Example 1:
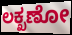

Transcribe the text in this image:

ಲಕ್ಖಣೋ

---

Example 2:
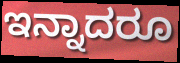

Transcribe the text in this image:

ಇನ್ನಾದರೂ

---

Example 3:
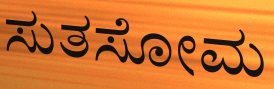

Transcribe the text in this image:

ಸುತಸೋಮ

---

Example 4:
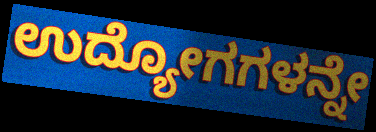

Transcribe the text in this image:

ಉದ್ಯೋಗಗಳನ್ನೇ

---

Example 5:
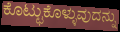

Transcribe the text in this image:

ಕೊಟ್ಟುಕೊಳ್ಳುವುದನ್ನು